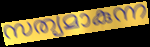
സത്യമാകുന്ന